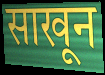
साखून